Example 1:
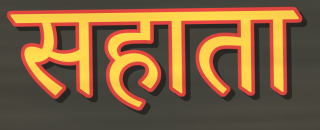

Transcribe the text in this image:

सहाता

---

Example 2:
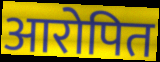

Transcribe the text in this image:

आरोपित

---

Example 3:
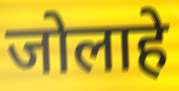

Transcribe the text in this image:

जोलाहे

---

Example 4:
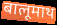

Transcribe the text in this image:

बालूमाथ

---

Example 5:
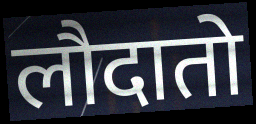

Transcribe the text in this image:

लौदातो